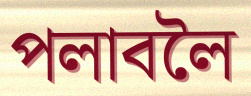
পলাবলৈ